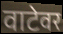
वाटेवर